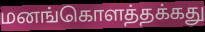
மனங்கொளத்தக்கது